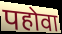
पहोवा